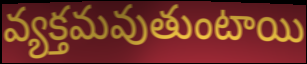
వ్యక్తమవుతుంటాయి